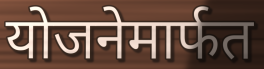
योजनेमार्फत